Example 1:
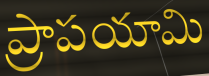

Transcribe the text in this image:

ప్రాపయామి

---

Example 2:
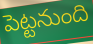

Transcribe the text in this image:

పెట్టనుంది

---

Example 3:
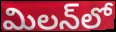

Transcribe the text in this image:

మిలన్‌లో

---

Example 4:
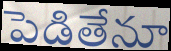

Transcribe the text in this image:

పెడితేనూ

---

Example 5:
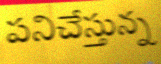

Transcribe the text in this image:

పనిచేస్తున్న